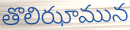
తొలిఝామున